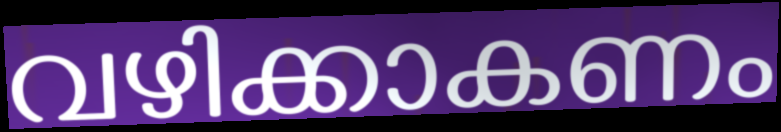
വഴിക്കാകണം